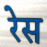
रेस